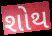
શોથ